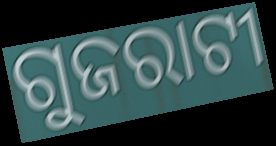
ଗୁଜରାଟୀ